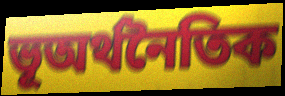
ভূঅর্থনৈতিক